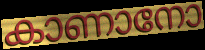
കാണാനോ